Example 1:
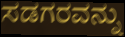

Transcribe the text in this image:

ಸಡಗರವನ್ನು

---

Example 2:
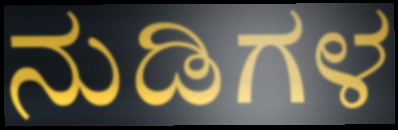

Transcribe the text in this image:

ನುಡಿಗಳ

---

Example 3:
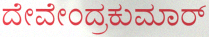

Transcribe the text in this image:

ದೇವೇಂದ್ರಕುಮಾರ್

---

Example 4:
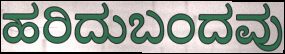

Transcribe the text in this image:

ಹರಿದುಬಂದವು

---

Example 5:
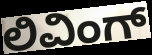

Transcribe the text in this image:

ಲಿವಿಂಗ್